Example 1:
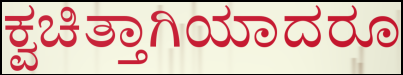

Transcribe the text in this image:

ಕ್ವಚಿತ್ತಾಗಿಯಾದರೂ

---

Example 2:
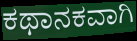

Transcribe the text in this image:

ಕಥಾನಕವಾಗಿ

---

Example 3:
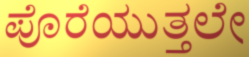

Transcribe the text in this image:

ಪೊರೆಯುತ್ತಲೇ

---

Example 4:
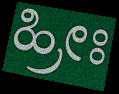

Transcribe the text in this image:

ಹ್ರೀಃ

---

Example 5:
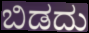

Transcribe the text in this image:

ಬಿಡದು